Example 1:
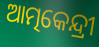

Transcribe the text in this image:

ଆତ୍ମକେନ୍ଦ୍ରୀ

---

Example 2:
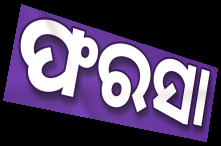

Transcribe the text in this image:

ଫରସା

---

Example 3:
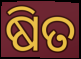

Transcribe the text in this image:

ଷିତ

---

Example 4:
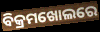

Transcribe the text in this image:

ବିକ୍ରମଖୋଲରେ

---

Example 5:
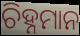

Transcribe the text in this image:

ଚିହ୍ନମାନ